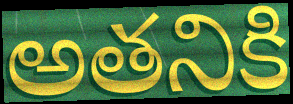
అతనికి